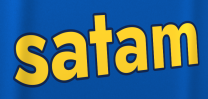
satam